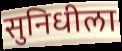
सुनिधीला